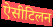
ऐसीटिलन